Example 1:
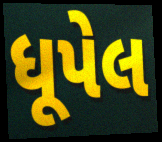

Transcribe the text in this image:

ધૂપેલ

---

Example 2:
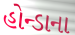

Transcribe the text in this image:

હોન્ડાના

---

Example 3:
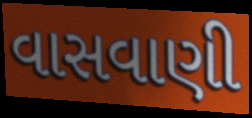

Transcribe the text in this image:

વાસવાણી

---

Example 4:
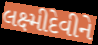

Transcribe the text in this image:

લક્ષ્મીદેવીને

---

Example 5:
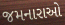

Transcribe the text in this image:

જમનારાઓ